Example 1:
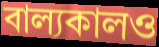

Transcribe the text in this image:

বাল্যকালও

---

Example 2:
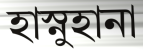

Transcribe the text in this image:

হাস্নুহানা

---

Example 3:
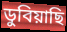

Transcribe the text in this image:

ডুবিয়াছি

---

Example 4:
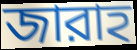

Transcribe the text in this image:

জারাহ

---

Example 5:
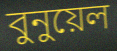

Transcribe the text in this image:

বুনুয়েল